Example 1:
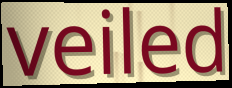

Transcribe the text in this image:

veiled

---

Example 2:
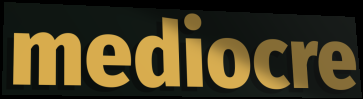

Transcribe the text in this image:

mediocre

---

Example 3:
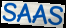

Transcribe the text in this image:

SAAS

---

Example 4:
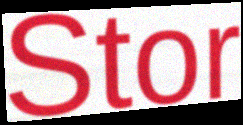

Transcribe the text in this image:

Stor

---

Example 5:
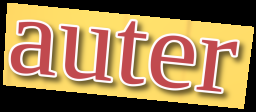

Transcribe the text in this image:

auter